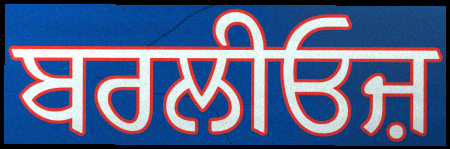
ਬਰਲੀਓਜ਼